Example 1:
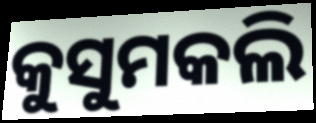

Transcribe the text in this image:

କୁସୁମକଲି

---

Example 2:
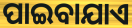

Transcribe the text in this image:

ପାଇବାଯାଏ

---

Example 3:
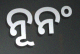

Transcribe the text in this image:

ନୂନଂ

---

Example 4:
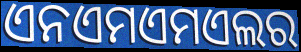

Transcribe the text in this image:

ଏନଏମଏମଏଲର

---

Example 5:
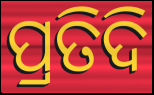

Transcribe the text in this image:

ପ୍ରତିଦି